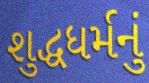
શુદ્ધધર્મનું